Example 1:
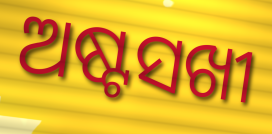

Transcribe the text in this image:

ଅଷ୍ଟସଖୀ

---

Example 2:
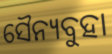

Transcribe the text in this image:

ସୈନ୍ୟବୁହା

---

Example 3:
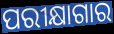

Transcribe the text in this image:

ପରୀକ୍ଷାଗାର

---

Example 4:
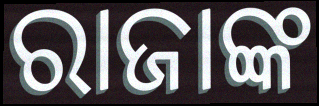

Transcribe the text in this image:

ରାଜାଙ୍କ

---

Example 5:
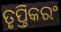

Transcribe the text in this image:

ତୃପ୍ତିକରଂ